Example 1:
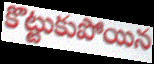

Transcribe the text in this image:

కొట్టుకుపోయిన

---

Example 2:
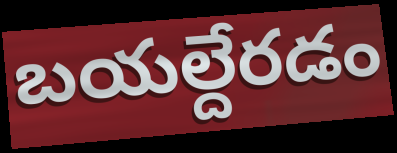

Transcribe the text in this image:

బయల్దేరడం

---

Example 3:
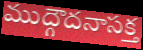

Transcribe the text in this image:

ముద్గౌదనాసక్త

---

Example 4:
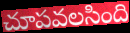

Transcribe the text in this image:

చూపవలసింది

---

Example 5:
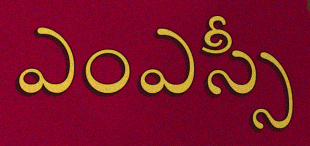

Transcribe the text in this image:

ఎంఎస్సీ